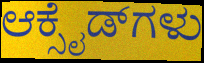
ಆಕ್ಸೈಡ್‌ಗಳು